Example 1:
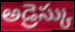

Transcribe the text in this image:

అడ్రెస్కు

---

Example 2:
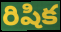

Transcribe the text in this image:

రిషిక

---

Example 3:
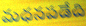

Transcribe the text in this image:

మధనపడేది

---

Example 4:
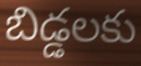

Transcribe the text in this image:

బిడ్డలకు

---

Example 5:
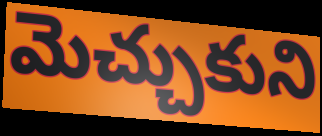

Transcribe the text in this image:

మెచ్చుకుని